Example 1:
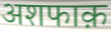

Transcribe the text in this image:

अशफाक़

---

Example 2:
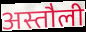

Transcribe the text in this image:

अस्तौली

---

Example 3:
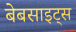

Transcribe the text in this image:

बेबसाइट्स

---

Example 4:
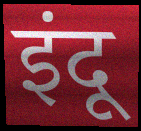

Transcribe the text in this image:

इंदू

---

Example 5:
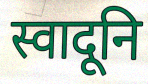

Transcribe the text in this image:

स्वादूनि